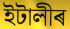
ইটালীৰ